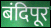
बंदिपूर